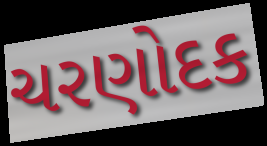
ચરણોદક